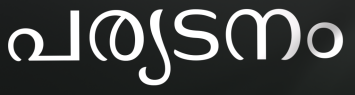
പര്യടനം